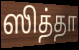
ஸித்தா